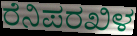
ರೆನಿಪರಖಿಳ